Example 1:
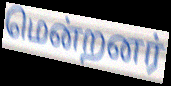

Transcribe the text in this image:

மென்றனர்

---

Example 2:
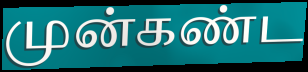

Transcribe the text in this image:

முன்கண்ட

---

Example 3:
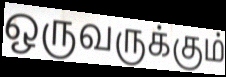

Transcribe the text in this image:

ஒருவருக்கும்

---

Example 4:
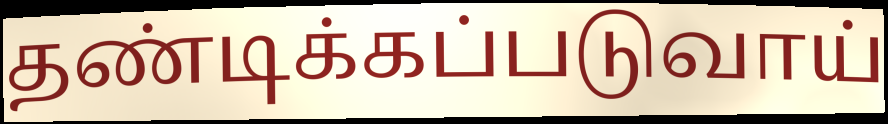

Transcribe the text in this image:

தண்டிக்கப்படுவாய்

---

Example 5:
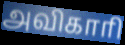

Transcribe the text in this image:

அவிகாரி